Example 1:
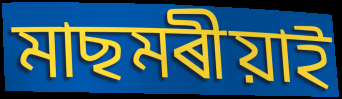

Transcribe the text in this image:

মাছমৰীয়াই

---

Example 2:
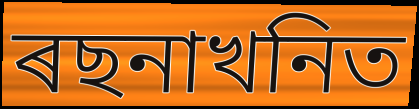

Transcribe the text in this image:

ৰছনাখনিত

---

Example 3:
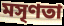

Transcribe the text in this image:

মসৃণতা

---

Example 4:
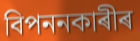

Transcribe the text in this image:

বিপননকাৰীৰ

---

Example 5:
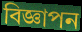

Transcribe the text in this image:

বিজ্ঞাপন